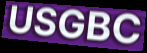
USGBC